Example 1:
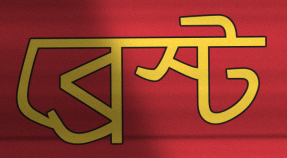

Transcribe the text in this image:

ব্রেস্ট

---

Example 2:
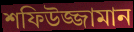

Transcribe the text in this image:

শফিউজ্জামান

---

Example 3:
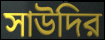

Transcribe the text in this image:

সাউদির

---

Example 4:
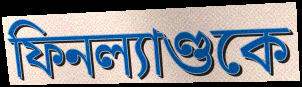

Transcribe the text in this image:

ফিনল্যাণ্ডকে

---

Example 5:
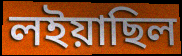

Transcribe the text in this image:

লইয়াছিল